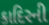
કાદિરની